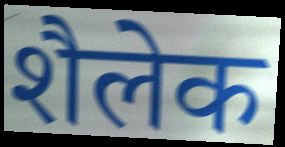
शैलेक